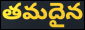
తమదైన